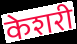
केशरी